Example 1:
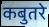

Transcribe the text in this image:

कबुतरे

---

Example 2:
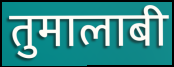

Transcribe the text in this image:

तुमालाबी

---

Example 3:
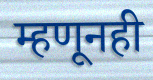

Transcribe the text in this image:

म्हणूनही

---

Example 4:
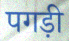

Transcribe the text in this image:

पगड़ी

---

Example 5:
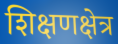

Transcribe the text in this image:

शिक्षणक्षेत्र